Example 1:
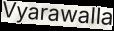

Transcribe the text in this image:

Vyarawalla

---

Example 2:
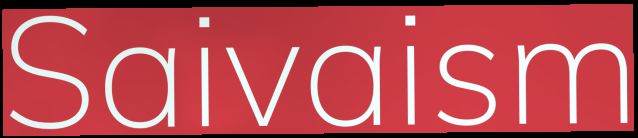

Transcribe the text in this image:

Saivaism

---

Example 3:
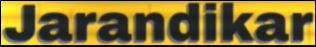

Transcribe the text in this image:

Jarandikar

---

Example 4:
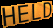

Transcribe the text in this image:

HELD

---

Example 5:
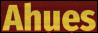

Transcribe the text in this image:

Ahues